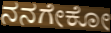
ನನಗೇಕೋ